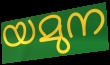
യമുന